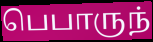
பெபாருந்